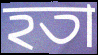
হতা